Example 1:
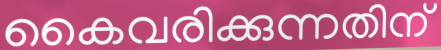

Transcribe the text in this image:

കൈവരിക്കുന്നതിന്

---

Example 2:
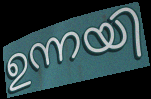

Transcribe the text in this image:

ഉന്നയി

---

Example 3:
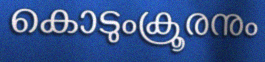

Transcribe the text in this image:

കൊടുംക്രൂരനും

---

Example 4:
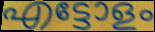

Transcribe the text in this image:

എട്ടോളം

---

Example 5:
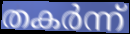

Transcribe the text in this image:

തകർന്ന്